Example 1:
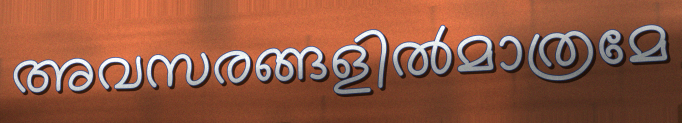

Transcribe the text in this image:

അവസരങ്ങളിൽമാത്രമേ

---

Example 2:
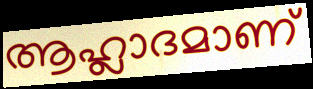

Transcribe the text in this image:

ആഹ്ലാദമാണ്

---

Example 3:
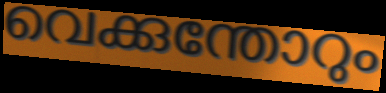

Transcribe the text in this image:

വെക്കുന്തോറും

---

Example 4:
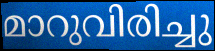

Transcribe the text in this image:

മാറുവിരിച്ചു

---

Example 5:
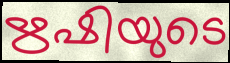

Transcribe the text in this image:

ഋഷിയുടെ